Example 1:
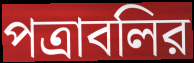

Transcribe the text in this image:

পত্রাবলির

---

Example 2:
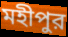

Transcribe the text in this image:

মহীপুর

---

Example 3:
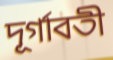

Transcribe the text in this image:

দূর্গাবতী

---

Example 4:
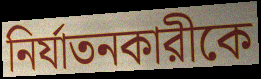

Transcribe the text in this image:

নির্যাতনকারীকে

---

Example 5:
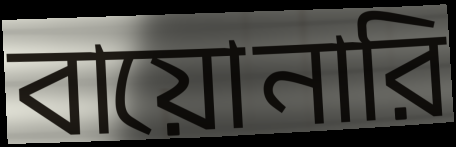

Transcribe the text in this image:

বায়োনারি